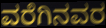
ವರೆಗಿನವರ